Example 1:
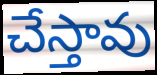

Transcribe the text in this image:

చేస్తావు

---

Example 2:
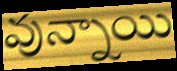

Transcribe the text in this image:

వున్నాయి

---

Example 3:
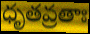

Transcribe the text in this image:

ధృతవ్రతాః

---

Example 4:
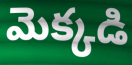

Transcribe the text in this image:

మెక్కడి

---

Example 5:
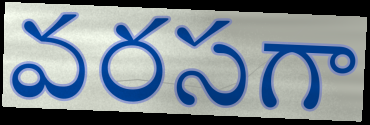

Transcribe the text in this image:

వరసగా